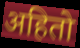
अहितो